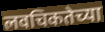
लवचिकतेच्या